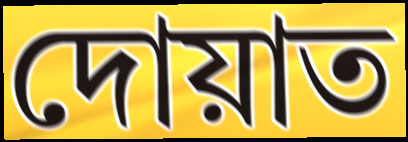
দোয়াত